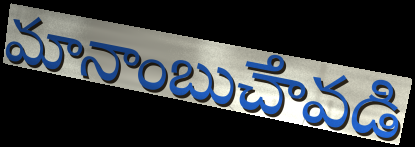
మానాంబుౘావడి